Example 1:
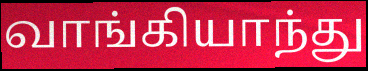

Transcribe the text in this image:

வாங்கியாந்து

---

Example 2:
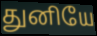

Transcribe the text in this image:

துனியே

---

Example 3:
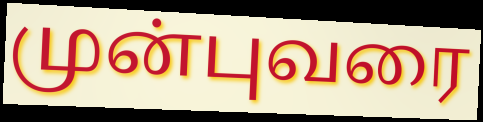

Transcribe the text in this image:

முன்புவரை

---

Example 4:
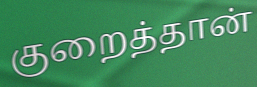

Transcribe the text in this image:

குறைத்தான்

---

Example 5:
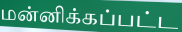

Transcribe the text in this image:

மன்னிக்கப்பட்ட